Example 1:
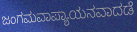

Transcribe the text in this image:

ಜಂಗಮವಾಪ್ಯಾಯನವಾದಡೆ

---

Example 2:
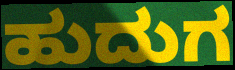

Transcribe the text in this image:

ಹುದುಗ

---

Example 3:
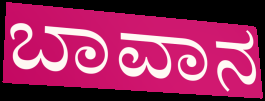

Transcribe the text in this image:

ಬಾವಾನ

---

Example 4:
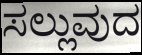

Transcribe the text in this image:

ಸಲ್ಲುವುದ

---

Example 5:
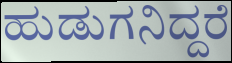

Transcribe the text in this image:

ಹುಡುಗನಿದ್ದರೆ